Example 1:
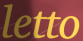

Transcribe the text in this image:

letto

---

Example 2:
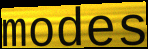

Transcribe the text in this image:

modes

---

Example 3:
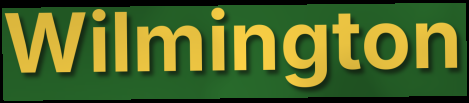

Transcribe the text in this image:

Wilmington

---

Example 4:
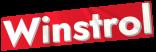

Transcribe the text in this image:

Winstrol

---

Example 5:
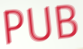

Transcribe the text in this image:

PUB